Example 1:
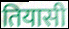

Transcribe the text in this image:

तियासी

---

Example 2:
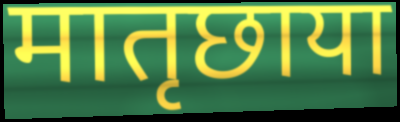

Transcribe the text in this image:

मातृछाया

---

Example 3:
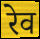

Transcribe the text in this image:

रेव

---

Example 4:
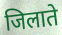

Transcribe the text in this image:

जिलाते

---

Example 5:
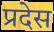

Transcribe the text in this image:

प्रदेस